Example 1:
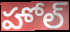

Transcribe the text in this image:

హోల్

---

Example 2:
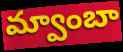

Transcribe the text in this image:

మ్వాంబా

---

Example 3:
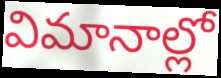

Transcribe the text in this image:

విమానాల్లో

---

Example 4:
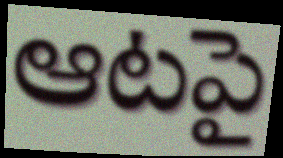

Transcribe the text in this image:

ఆటపై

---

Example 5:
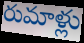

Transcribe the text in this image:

రుమాళ్లు